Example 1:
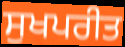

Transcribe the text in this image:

ਸੁਖਪਰੀਤ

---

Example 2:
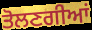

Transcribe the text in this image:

ਤੋਲਣਗੀਆਂ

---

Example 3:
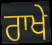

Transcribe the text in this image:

ਰਾਖੇ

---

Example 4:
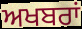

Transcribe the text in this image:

ਅਖਬਰਾਂ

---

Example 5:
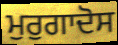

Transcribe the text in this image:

ਮੁਰੁਗਾਦੋਸ